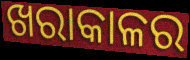
ଖରାକାଳର